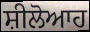
ਸ਼ੀਲੋਆਹ